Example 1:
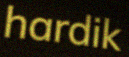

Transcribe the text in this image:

hardik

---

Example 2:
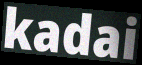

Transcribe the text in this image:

kadai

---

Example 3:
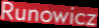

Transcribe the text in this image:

Runowicz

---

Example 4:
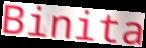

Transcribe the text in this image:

Binita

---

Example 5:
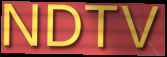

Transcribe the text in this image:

NDTV